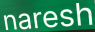
naresh